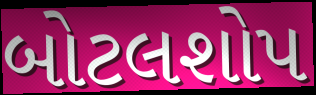
બોટલશોપ